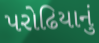
પરોઢિયાનું